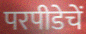
परपीडेचें